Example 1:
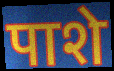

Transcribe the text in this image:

पाशे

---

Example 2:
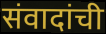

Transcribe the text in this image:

संवादांची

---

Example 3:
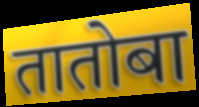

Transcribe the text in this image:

तातोबा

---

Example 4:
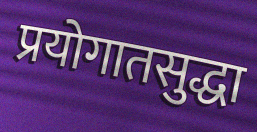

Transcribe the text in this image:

प्रयोगातसुद्धा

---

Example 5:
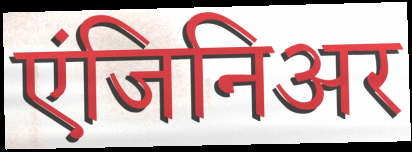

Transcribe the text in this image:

एंजिनिअर